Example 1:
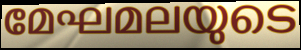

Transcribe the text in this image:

മേഘമലയുടെ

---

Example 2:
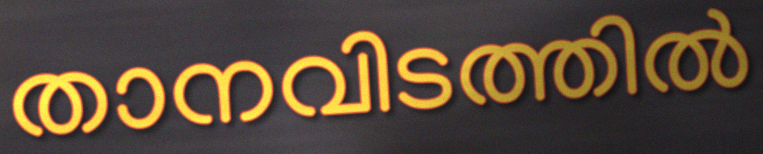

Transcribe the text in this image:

താനവിടത്തിൽ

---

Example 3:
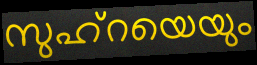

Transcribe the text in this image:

സുഹ്റയെയും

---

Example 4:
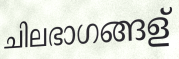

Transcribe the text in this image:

ചിലഭാഗങ്ങള്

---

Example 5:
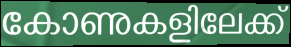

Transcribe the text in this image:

കോണുകളിലേക്ക്